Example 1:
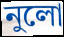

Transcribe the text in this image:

নুলো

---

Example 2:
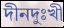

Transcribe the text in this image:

দীনদুঃখী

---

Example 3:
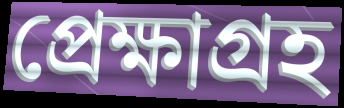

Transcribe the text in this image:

প্রেক্ষাগ্রহ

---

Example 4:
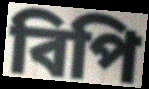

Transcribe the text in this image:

বিপি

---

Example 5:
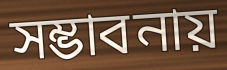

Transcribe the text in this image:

সম্ভাবনায়